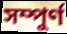
সম্পুৰ্ণ